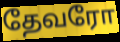
தேவரோ